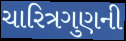
ચારિત્રગુણની